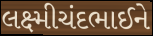
લક્ષ્મીચંદભાઈને